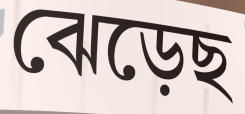
ঝেড়েছ